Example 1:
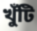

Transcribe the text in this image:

খুঁটি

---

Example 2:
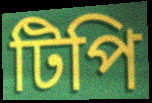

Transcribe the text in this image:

টিপি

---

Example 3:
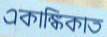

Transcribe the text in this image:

একাঙ্কিকাত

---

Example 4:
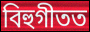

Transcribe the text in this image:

বিহুগীতত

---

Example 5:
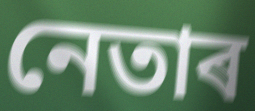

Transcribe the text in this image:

নেতাৰ